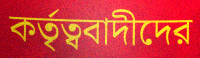
কর্তৃত্ববাদীদের